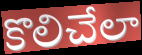
కొలిచేలా